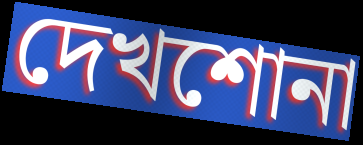
দেখশোনা